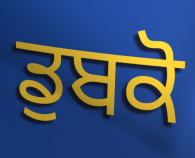
ਡੁਬਕੋ